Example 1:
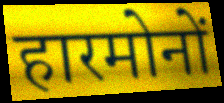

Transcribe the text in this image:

हारमोनों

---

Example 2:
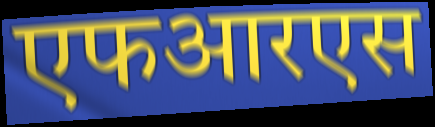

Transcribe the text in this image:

एफआरएस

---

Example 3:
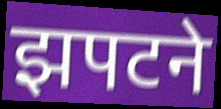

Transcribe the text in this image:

झपटने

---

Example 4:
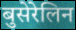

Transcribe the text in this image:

बुसेरेलिन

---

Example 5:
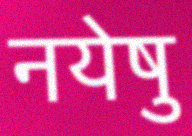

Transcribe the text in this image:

नयेषु